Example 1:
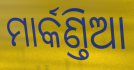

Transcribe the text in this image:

ମାର୍କଣ୍ତିଆ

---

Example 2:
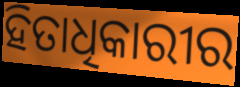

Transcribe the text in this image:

ହିତାଧିକାରୀର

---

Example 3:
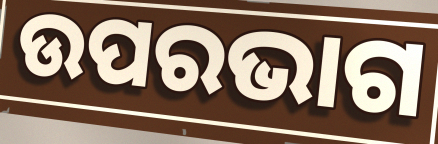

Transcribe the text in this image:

ଉପରଭାଗ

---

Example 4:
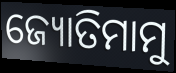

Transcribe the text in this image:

ଜ୍ୟୋତିମାମୁ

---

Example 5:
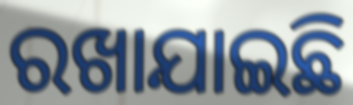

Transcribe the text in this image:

ରଖାଯାଇଛି